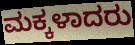
ಮಕ್ಕಳಾದರು